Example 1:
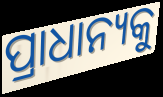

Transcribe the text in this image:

ପ୍ରାଧାନ୍ୟକୁ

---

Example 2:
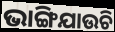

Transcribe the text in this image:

ଭାଙ୍ଗିଯାଉଚି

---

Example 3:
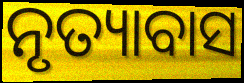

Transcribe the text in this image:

ନୃତ୍ୟାବାସ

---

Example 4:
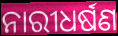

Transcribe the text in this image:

ନାରୀଧର୍ଷଣ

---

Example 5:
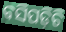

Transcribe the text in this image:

ବସିପଡ଼ିଚି